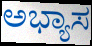
ಅಭ್ಯಾಸ